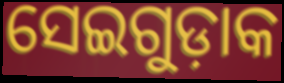
ସେଇଗୁଡ଼ାକ